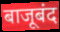
बाजूबंद